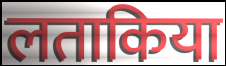
लताकिया